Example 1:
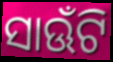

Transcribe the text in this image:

ସାଊଁଟି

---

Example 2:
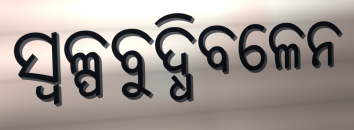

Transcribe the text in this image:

ସ୍ଵଳ୍ପବୁଦ୍ଧିବଳେନ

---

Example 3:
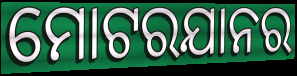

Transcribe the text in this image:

ମୋଟରଯାନର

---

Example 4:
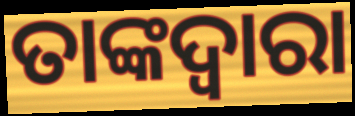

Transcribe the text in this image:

ତାଙ୍କଦ୍ଵାରା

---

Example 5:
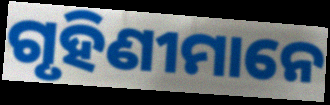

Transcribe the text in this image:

ଗୃହିଣୀମାନେ